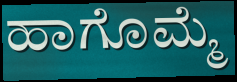
ಹಾಗೊಮ್ಮೆ